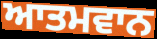
ਆਤਮਵਾਨ